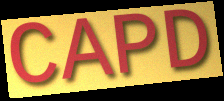
CAPD